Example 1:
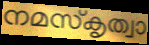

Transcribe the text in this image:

നമസ്കൃത്വാ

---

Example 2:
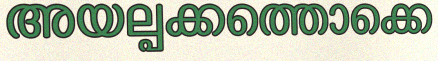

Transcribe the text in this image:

അയല്പക്കത്തൊക്കെ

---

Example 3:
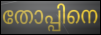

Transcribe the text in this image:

തോപ്പിനെ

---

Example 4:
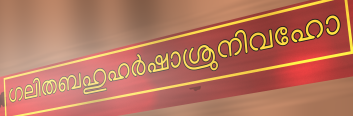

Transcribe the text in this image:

ഗലിതബഹുഹർഷാശ്രുനിവഹോ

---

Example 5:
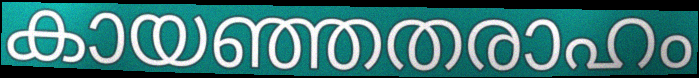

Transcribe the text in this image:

കായഞ്ഞതരാഹം